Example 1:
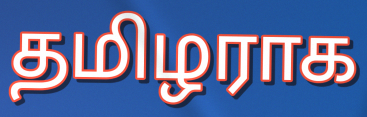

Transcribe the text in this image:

தமிழராக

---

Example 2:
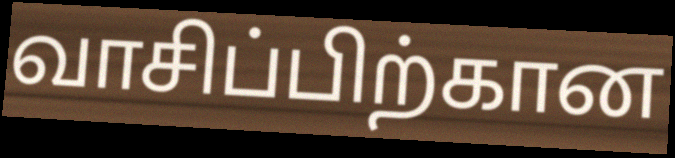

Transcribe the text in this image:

வாசிப்பிற்கான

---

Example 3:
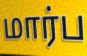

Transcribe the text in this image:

மார்ப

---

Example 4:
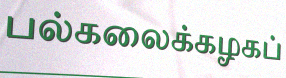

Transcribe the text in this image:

பல்கலைக்கழகப்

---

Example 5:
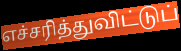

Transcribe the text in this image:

எச்சரித்துவிட்டுப்